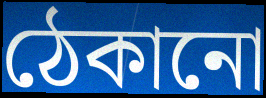
ঠেকানো